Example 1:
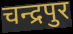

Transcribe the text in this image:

चन्द्रपुर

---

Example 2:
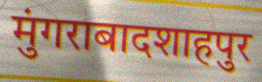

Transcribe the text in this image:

मुंगराबादशाहपुर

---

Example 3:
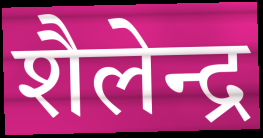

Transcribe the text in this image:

शैलेन्द्र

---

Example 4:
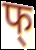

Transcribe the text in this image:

फ्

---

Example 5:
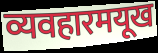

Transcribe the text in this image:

व्यवहारमयूख